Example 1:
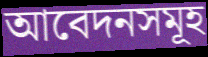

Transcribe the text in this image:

আবেদনসমূহ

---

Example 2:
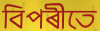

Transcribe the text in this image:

বিপৰীতে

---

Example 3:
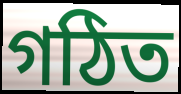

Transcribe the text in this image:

গঠিত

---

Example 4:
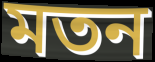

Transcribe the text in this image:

মতন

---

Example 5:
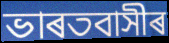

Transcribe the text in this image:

ভাৰতবাসীৰ